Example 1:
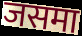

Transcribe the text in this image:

जसमा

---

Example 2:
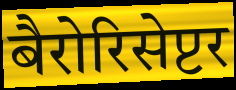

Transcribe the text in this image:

बैरोरिसेप्टर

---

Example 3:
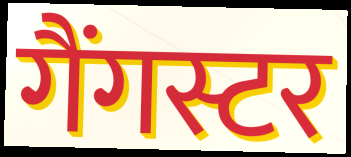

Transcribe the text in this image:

गैंगस्टर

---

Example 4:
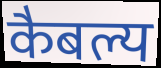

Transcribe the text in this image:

कैबल्य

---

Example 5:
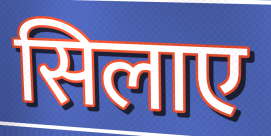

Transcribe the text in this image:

सिलाए